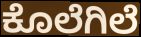
ಕೊಲೆಗಿಲೆ